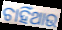
ଚାହିଁଥାଉ